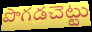
పొగడచెట్టు